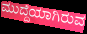
ಮುದ್ದೆಯಾಗಿರುವ